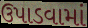
ઉપાડવામાં